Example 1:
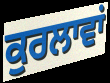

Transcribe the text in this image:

ਕੁਰਲਾਵਾਂ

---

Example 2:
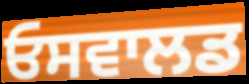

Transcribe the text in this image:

ਓਸਵਾਲਡ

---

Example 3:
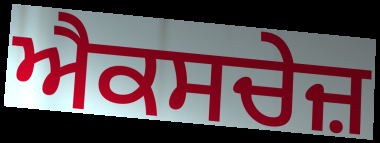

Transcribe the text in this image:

ਐਕਸਚੇਜ਼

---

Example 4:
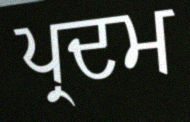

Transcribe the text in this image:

ਪ੍ਰਦਮ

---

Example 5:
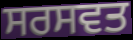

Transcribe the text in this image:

ਸਰਸਵਤ